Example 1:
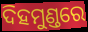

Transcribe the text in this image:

ଦିହମୁଣ୍ଡରେ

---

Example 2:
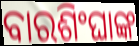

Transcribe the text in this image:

ବାରଶିଂଘାଙ୍କ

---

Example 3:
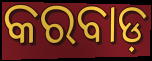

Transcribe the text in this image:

କରବାଡ଼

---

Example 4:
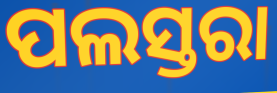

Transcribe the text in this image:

ପଲସ୍ତରା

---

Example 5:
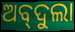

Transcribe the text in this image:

ଅବ୍‌ଦୁଲା